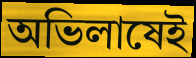
অভিলাষেই